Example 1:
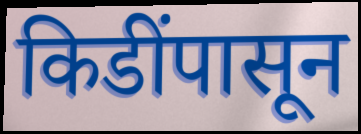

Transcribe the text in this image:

किडींपासून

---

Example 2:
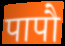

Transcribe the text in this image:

पापौ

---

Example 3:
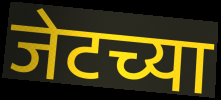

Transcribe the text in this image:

जेटच्या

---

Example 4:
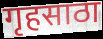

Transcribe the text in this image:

गृहसाठा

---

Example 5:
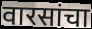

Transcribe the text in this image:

वारसांचा